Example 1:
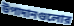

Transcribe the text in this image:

উপাদানগুলোর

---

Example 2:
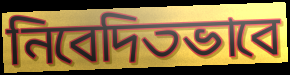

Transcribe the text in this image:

নিবেদিতভাবে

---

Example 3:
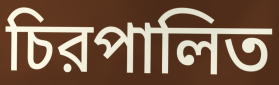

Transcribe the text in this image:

চিরপালিত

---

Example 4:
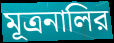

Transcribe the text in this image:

মূত্রনালির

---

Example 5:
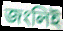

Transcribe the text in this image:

জংলিই